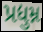
પ્રદ્યુમ્ન